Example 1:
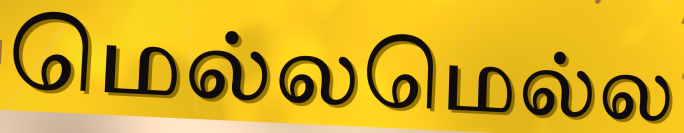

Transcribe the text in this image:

மெல்லமெல்ல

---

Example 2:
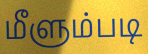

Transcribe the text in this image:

மீளும்படி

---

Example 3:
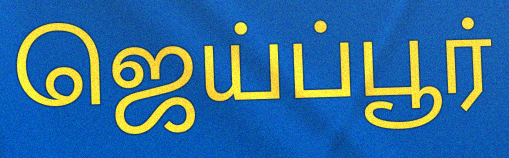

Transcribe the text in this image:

ஜெய்ப்பூர்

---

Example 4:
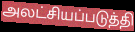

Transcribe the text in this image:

அலட்சியப்படுத்தி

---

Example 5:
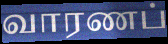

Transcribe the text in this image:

வாரணப்